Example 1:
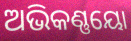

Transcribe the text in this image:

ଅଭିକଣ୍ଣୟୋ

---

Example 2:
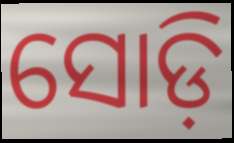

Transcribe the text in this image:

ସୋଡ଼ି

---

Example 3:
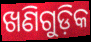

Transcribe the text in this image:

ଖଣିଗୁଡ଼ିକ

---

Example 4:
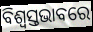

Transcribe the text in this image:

ବିଶ୍ୱସ୍ତଭାବରେ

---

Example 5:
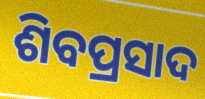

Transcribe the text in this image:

ଶିବପ୍ରସାଦ